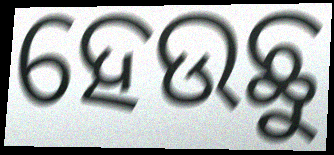
ହେଉଛୁ